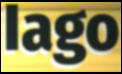
Iago